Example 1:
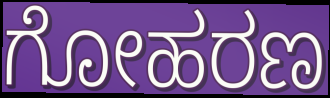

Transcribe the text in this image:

ಗೋಹರಣ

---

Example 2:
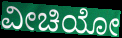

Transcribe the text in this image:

ವೀಚಿಯೋ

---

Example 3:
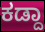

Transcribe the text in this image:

ಕಡ್ದಾ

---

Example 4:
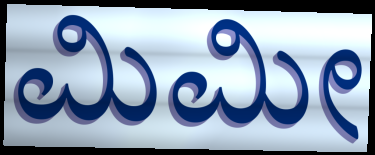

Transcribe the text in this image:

ಮಿಮೀ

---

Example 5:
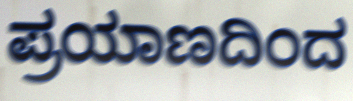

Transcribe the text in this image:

ಪ್ರಯಾಣದಿಂದ